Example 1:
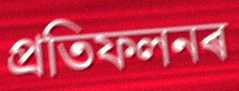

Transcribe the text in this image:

প্ৰতিফলনৰ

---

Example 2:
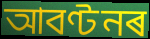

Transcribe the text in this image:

আবণ্টনৰ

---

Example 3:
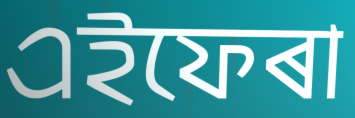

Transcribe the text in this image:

এইফেৰা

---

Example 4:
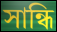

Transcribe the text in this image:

সান্ধি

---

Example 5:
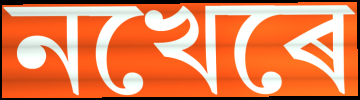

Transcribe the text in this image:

নখেৰে